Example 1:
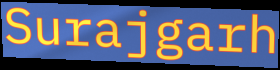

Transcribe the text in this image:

Surajgarh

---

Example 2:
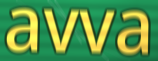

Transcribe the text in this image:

avva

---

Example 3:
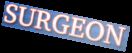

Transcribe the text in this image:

SURGEON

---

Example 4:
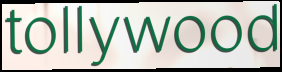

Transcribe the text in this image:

tollywood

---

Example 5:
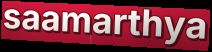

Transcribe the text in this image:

saamarthya